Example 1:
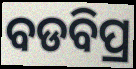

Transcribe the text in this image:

ବଡବିପ୍ର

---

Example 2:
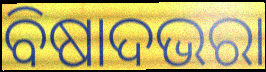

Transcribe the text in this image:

ବିଷାଦଭରା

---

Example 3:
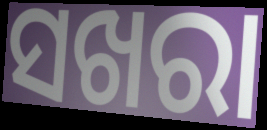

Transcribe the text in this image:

ସଖରା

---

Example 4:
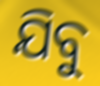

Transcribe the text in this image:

ଯିବୁ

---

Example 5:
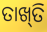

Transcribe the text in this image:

ତାଖ୍‍ତି